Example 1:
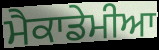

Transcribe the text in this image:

ਮੈਕਾਡੇਮੀਆ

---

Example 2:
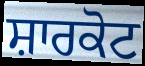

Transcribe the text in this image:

ਸ਼ਾਰਕੋਟ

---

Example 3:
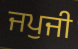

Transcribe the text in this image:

ਜਪੁਜੀ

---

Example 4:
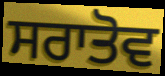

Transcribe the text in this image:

ਸਰਾਤੋਵ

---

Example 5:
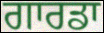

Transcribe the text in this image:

ਗਾਰਡਾ